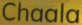
Chaala